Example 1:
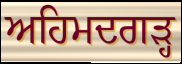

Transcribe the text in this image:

ਅਹਿਮਦਗੜ੍ਹ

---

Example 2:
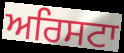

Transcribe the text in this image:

ਅਰਿਸਟਾ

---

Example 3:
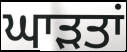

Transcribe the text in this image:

ਘਾਡ਼ਤਾਂ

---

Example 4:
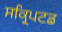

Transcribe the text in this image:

ਸਕ੍ਰਿਪਟਡ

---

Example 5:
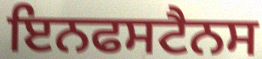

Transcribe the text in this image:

ਇਨਫਸਟੈਨਸ